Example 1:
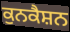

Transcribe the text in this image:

ਕੁਨਕੈਸ਼ਨ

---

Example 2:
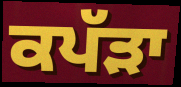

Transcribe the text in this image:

ਕਪੱੜਾ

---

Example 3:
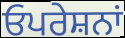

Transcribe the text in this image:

ਓਪਰੇਸ਼ਨਾਂ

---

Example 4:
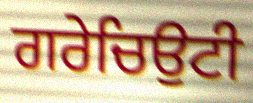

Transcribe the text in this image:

ਗਰੇਚਿਉਟੀ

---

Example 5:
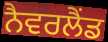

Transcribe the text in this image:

ਨੈਵਰਲੈਂਡ